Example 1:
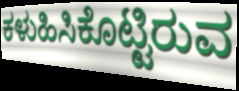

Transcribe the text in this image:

ಕಳುಹಿಸಿಕೊಟ್ಟಿರುವ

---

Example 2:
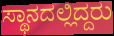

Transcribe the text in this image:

ಸ್ಥಾನದಲ್ಲಿದ್ದರು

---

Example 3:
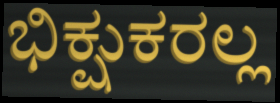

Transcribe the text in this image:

ಭಿಕ್ಷುಕರಲ್ಲ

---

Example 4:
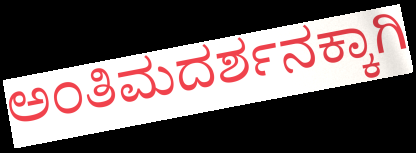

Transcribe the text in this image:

ಅಂತಿಮದರ್ಶನಕ್ಕಾಗಿ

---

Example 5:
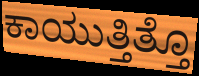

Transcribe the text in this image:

ಕಾಯುತ್ತಿತ್ತೊ